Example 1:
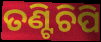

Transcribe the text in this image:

ତଣ୍ଟିଚିପି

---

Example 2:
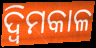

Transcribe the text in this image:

ଦ୍ବିମକାଳ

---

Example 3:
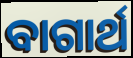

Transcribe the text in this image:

ବାଗାର୍ଥ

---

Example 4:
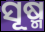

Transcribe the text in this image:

ସୂଷ୍ମ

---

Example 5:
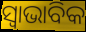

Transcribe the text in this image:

ସ୍ୱାଭାବିକ